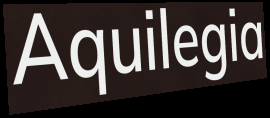
Aquilegia